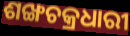
ଶଙ୍ଖଚକ୍ରଧାରୀ